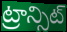
ట్రాన్సిట్